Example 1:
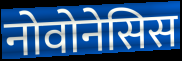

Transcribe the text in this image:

नोवोनेसिस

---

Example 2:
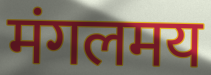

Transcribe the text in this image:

मंगलमय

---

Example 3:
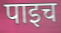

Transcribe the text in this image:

पाइच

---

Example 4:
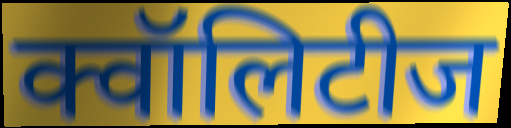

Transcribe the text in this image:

क्वॉलिटीज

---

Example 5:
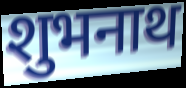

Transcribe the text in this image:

शुभनाथ